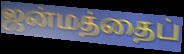
ஜன்மத்தைப்